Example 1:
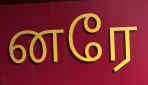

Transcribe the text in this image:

னரே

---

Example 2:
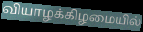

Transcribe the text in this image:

வியாழக்கிழமையில்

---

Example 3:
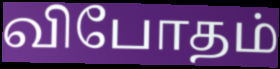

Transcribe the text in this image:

விபோதம்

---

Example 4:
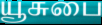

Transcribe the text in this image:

யூசுபை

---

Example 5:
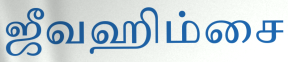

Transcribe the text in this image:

ஜீவஹிம்சை